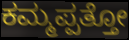
ಕಮ್ಮಪ್ಪತ್ತೋ